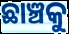
ଛାଞ୍ଚକୁ